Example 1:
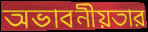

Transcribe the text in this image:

অভাবনীয়তার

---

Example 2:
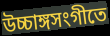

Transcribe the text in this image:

উচ্চাঙ্গসংগীতে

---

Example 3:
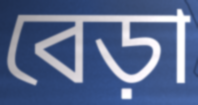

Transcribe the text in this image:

বেড়া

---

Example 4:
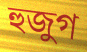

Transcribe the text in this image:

হুজুগ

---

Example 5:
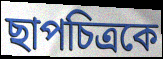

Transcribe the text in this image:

ছাপচিত্রকে